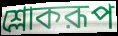
শ্লোকরূপ